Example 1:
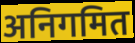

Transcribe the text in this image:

अनिगमित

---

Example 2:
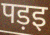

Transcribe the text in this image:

पड़इ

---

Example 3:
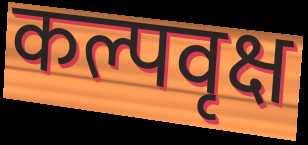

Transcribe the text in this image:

कल्‍पवृक्ष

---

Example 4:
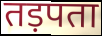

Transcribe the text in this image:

तड़पता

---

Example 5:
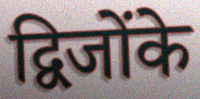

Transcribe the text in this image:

द्विजोंके